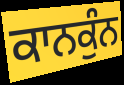
ਕਾਨਕੁੰਨ